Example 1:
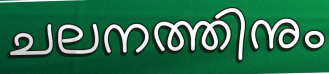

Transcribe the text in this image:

ചലനത്തിനും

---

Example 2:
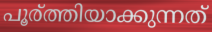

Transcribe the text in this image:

പൂര്ത്തിയാക്കുന്നത്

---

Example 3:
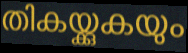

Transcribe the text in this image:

തികയ്ക്കുകയും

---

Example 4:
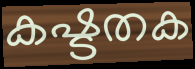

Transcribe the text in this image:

കഷ്ടതക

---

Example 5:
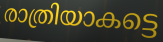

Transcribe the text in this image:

രാത്രിയാകട്ടെ